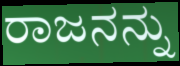
ರಾಜನನ್ನು